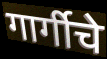
गार्गीचे